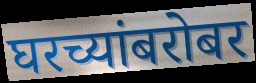
घरच्यांबरोबर